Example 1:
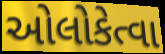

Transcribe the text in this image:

ઓલોકેત્વા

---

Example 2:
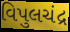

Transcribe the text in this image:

વિપુલચંદ્ર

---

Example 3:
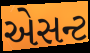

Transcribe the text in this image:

એસન્ટ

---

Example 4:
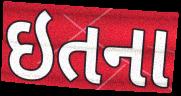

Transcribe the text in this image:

ઇતના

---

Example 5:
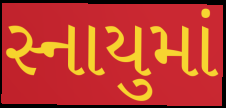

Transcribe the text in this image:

સ્નાયુમાં